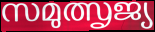
സമുത്സൃജ്യ